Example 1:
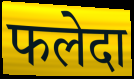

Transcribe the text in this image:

फलेदा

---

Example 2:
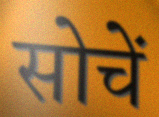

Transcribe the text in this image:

सोचें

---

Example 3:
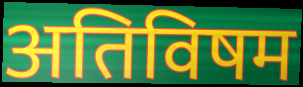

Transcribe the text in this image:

अतिविषम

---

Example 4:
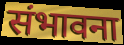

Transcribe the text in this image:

संभावना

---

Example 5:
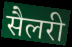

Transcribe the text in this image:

सैलरी